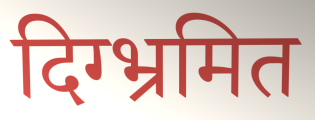
दिग्भ्रमित